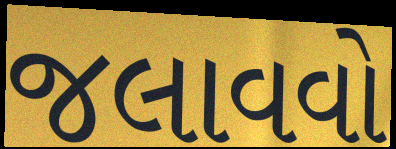
જલાવવો